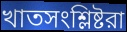
খাতসংশ্লিষ্টরা